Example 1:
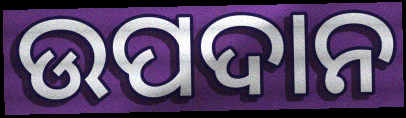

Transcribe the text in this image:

ଉପଦାନ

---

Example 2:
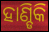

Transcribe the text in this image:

ହାଣ୍ଡିକି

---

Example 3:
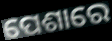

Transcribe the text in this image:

ପେଶାରେ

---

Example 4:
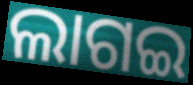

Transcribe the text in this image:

ଲାଗଇ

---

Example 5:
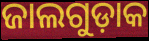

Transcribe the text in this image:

ଜାଲଗୁଡ଼ାକ